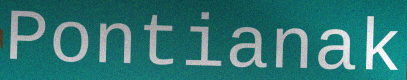
Pontianak